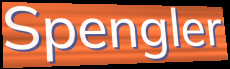
Spengler